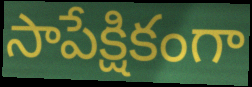
సాపేక్షికంగా